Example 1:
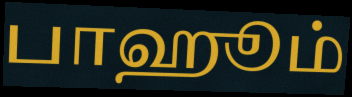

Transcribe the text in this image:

பாஹூம்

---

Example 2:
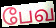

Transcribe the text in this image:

பேவ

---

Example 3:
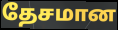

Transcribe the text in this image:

தேசமான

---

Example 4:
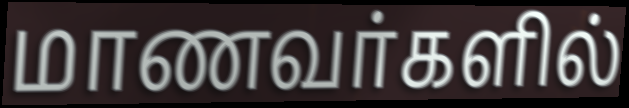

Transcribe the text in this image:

மாணவர்களில்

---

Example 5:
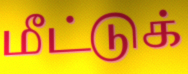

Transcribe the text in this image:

மீட்டுக்